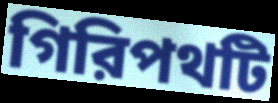
গিরিপথটি